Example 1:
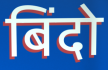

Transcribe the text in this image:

बिंदो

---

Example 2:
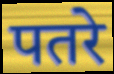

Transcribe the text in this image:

पतरे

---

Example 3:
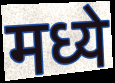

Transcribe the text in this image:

मध्ये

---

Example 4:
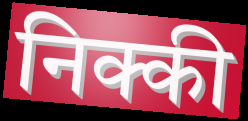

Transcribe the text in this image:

निक्की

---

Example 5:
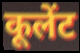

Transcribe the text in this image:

कूलेंट